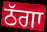
ਠੱਗਾ